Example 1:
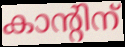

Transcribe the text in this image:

കാന്റിന്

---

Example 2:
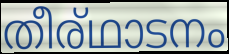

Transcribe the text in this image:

തീര്ഥാടനം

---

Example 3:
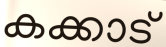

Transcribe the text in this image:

കക്കാട്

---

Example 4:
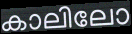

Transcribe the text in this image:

കാലിലോ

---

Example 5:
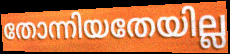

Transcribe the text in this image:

തോന്നിയതേയില്ല